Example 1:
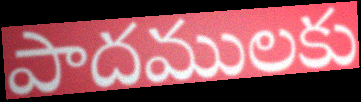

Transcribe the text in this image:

పాదములకు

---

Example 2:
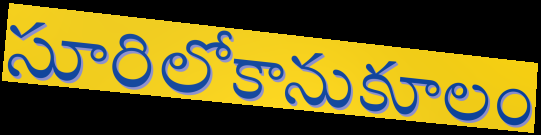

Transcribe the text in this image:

సూరిలోకానుకూలం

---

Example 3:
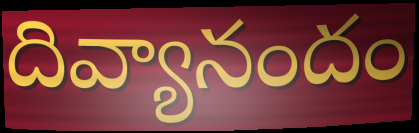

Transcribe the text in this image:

దివ్యానందం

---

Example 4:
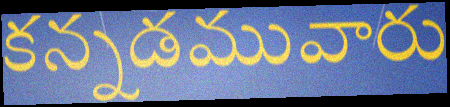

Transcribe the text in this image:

కన్నడమువారు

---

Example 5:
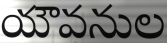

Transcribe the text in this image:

యౌవనుల